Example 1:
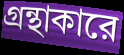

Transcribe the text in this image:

গ্রন্থাকারে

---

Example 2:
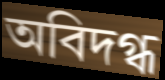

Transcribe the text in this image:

অবিদগ্ধ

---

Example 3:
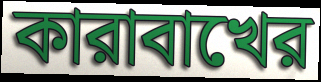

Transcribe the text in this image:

কারাবাখের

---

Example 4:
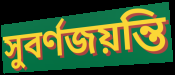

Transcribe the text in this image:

সুবর্ণজয়ন্তি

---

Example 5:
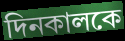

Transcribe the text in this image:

দিনকালকে